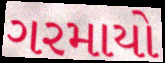
ગરમાયો